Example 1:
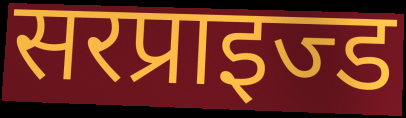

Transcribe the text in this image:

सरप्राइज्ड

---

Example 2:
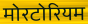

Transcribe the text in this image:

मोरटोरियम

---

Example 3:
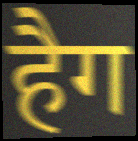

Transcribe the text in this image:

हैग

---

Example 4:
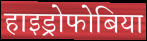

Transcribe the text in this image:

हाइड्रोफोबिया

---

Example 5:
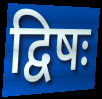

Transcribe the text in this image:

द्विषः